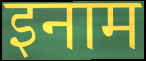
इनाम